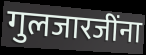
गुलजारजींना